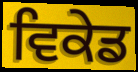
ਵਿਕੇਡ